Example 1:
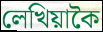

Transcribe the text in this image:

লেখিয়াকৈ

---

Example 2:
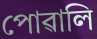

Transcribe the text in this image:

পোৱালি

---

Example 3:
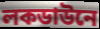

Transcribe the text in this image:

লকডাউনে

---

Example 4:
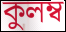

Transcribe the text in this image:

কুলম্ব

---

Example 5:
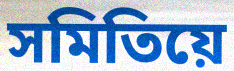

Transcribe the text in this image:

সমিতিয়ে